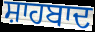
ਸ਼ਾਹਬਾਦ